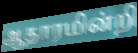
ஆதாரமின்றி